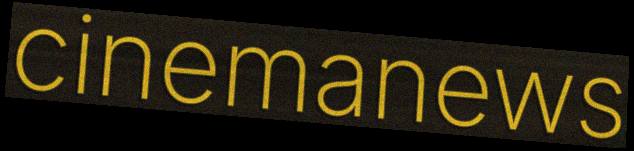
cinemanews